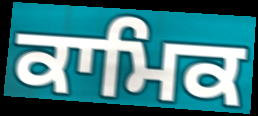
ਕਾਮਿਕ